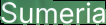
Sumeria